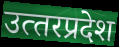
उत्‍तरप्रदेश